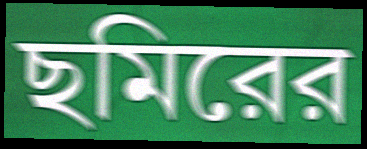
ছমিরের